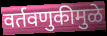
वर्तवणुकीमुळे